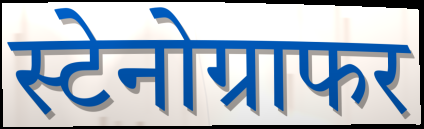
स्टेनोग्राफर